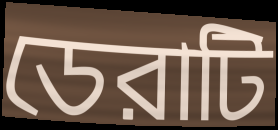
ডেরাটি